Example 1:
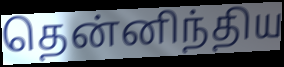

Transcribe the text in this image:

தென்னிந்திய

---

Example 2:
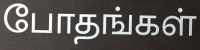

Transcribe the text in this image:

போதங்கள்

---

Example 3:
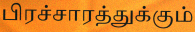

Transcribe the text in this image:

பிரச்சாரத்துக்கும்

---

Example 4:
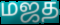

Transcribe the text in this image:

மஜத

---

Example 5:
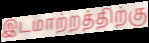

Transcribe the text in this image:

இடமாற்றத்திற்கு